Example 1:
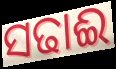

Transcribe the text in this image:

ସଢାଈ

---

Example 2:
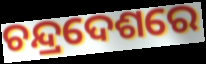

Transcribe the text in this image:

ଚନ୍ଦ୍ରଦେଶରେ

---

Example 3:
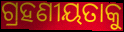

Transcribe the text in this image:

ଗ୍ରହଣୀୟତାକୁ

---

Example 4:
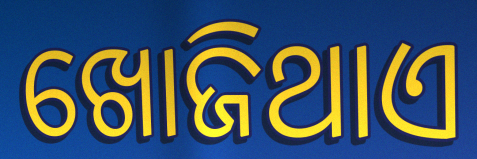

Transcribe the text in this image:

ଖୋଜିଥାଏ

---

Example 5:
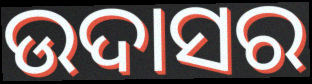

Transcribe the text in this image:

ଉଦାସର